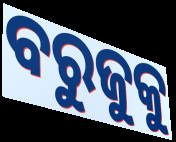
ବରୁଜୁକୁ